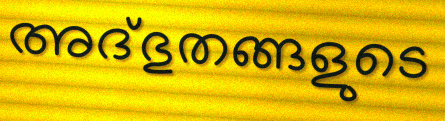
അദ്ഭുതങ്ങളുടെ